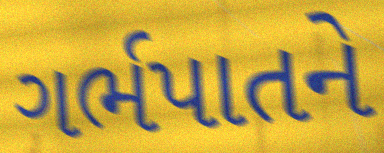
ગર્ભપાતને